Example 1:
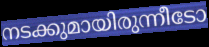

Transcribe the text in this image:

നടക്കുമായിരുന്നീടോ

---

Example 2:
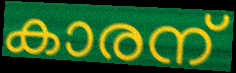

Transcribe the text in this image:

കാരന്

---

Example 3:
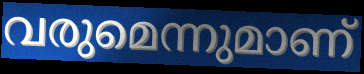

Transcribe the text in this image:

വരുമെന്നുമാണ്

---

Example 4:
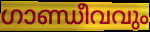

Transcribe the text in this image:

ഗാണ്ഡീവവും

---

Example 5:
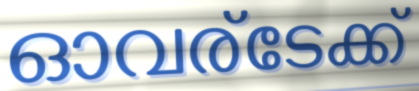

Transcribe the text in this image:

ഓവര്ടേക്ക്